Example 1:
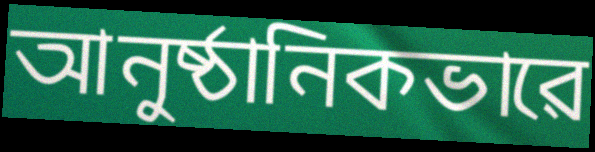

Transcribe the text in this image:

আনুষ্ঠানিকভাৱে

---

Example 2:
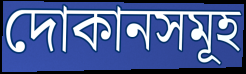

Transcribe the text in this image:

দোকানসমূহ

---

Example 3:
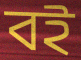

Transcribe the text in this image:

বই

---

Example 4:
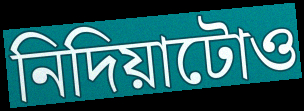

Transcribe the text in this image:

নিদিয়াটোও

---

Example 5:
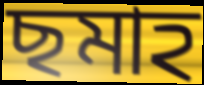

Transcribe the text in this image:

ছমাহ